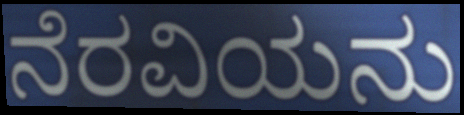
ನೆರವಿಯನು